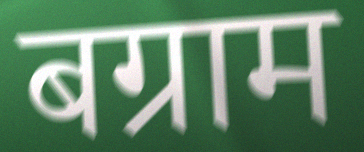
बग्राम